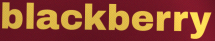
blackberry